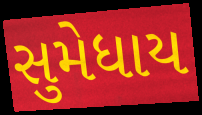
સુમેધાય